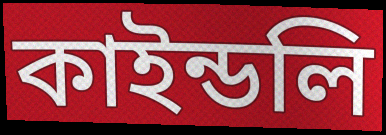
কাইন্ডলি